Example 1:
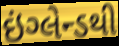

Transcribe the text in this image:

ઇંગ્લેન્ડથી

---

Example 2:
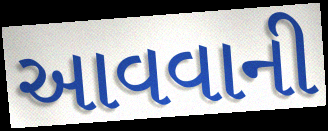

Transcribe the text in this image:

આવવાની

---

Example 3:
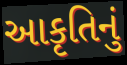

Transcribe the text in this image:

આકૃતિનું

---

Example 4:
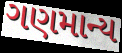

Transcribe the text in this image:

ગણમાન્ય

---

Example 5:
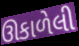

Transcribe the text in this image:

ઊકાળેલી